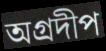
অগ্রদীপ